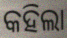
କହିଲା